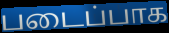
படைப்பாக